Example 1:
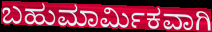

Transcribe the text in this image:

ಬಹುಮಾರ್ಮಿಕವಾಗಿ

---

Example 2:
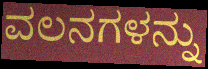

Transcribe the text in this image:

ವಲನಗಳನ್ನು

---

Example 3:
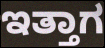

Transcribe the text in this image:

ಇತ್ತಾಗ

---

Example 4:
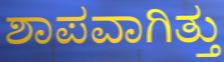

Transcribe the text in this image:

ಶಾಪವಾಗಿತ್ತು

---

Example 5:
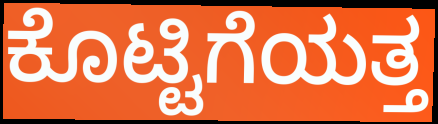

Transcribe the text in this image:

ಕೊಟ್ಟಿಗೆಯತ್ತ